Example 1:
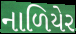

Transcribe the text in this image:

નાળિયેર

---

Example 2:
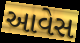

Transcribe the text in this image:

આવેસ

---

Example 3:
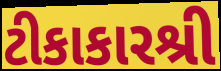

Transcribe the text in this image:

ટીકાકારશ્રી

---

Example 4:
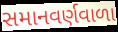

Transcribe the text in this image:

સમાનવર્ણવાળા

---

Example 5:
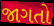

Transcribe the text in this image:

જાગતો